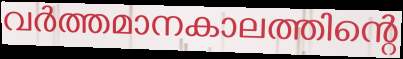
വർത്തമാനകാലത്തിന്റെ